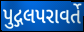
પુદ્ગલપરાવર્તે